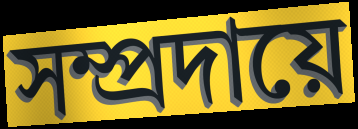
সম্প্রদায়ে